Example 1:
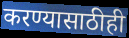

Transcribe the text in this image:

करण्यासाठीही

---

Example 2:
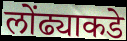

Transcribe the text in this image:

लोंढ्याकडे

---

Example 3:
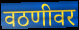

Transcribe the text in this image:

वठणीवर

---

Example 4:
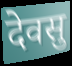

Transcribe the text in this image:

देवसु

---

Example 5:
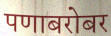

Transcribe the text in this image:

पणाबरोबर